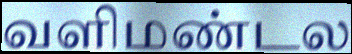
வளிமண்டல